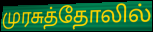
முரசுத்தோலில்